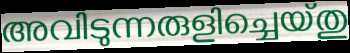
അവിടുന്നരുളിച്ചെയ്തു